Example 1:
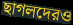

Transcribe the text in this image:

ছাগলদেরও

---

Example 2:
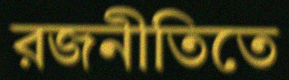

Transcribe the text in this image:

রজনীতিতে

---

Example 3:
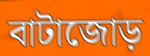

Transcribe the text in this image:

বাটাজোড়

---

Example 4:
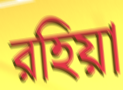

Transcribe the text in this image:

রহিয়া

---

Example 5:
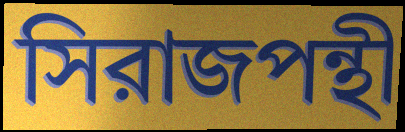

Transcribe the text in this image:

সিরাজপন্থী